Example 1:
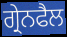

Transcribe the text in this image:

ਗ੍ਰੇਨਫੈਲ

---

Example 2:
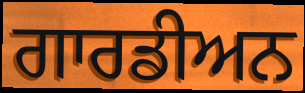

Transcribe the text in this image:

ਗਾਰਡੀਅਨ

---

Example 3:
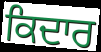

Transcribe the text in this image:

ਕਿਦਾਰ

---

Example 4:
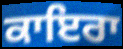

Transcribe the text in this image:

ਕਾਇਰਾ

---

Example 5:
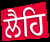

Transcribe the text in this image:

ਲੈਹਿ